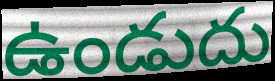
ఉండుదు